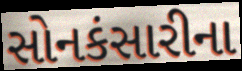
સોનકંસારીના